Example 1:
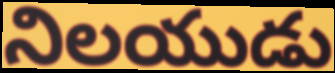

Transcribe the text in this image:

నిలయుడు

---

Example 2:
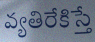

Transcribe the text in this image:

వ్యతిరేకిస్తే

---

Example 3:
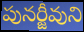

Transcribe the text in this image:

పునర్జీవుని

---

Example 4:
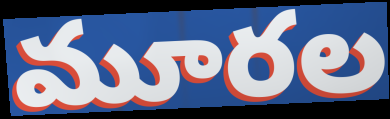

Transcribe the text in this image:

మూరల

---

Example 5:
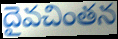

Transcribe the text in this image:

దైవచింతన